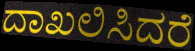
ದಾಖಲಿಸಿದರೆ